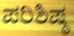
ಪರಿಶಿಷ್ಠ